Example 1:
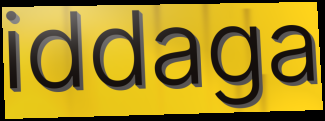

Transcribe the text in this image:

iddaga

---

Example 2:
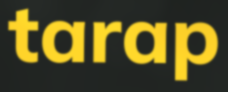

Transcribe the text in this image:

tarap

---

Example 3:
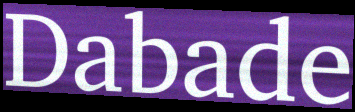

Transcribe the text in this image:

Dabade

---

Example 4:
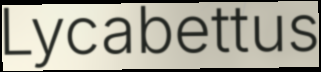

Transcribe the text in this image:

Lycabettus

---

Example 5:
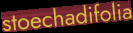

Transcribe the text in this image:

stoechadifolia